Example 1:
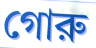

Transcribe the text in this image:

গোরু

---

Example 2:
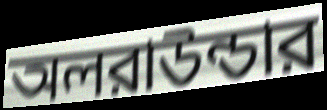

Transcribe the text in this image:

অলরাউন্ডার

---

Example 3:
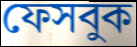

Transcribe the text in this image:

ফেসবুক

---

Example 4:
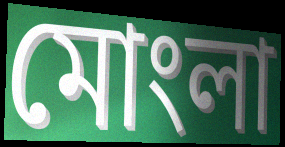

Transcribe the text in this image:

মোংলা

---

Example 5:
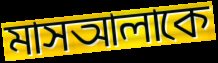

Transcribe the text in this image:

মাসআলাকে